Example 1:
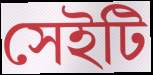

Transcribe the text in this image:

সেইটি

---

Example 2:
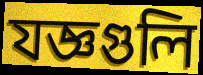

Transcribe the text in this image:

যজ্ঞগুলি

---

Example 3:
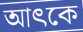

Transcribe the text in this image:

আৎকে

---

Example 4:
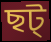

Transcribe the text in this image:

ছট্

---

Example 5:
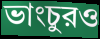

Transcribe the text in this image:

ভাংচুরও